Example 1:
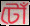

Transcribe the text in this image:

টোঁ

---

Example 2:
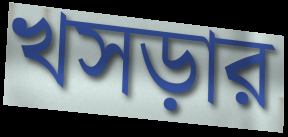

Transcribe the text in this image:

খসড়ার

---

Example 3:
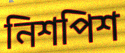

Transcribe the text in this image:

নিশপিশ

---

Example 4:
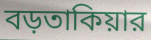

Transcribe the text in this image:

বড়তাকিয়ার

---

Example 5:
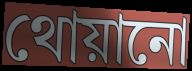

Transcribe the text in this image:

থোয়ানো